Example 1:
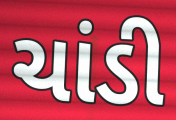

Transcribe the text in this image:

ચાંડી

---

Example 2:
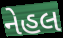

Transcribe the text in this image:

નેહલ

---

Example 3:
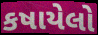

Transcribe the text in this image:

કષાયેલો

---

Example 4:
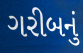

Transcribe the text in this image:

ગરીબનું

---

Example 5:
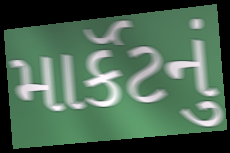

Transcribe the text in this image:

માર્કૅટનું